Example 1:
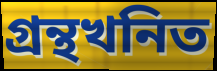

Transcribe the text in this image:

গ্ৰন্থখনিত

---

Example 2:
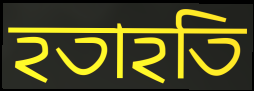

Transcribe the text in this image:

হতাহতি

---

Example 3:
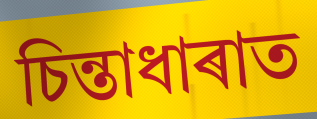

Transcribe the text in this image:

চিন্তাধাৰাত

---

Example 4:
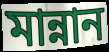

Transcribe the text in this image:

মান্নান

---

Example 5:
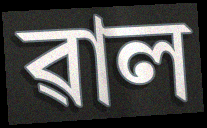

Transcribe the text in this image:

ৱাল